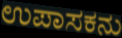
ಉಪಾಸಕನು